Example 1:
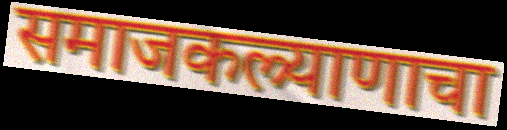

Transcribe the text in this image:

समाजकल्याणाचा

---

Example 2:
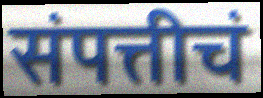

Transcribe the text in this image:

संपत्तीचं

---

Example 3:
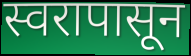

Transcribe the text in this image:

स्वरापासून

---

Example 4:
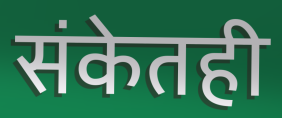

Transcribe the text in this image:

संकेतही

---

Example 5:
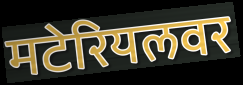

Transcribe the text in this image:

मटेरियलवर